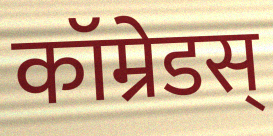
कॉम्रेडस्